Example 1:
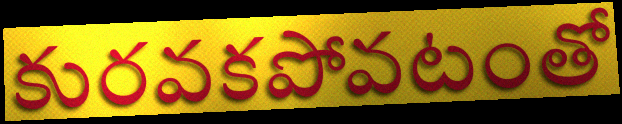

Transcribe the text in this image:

కురవకపోవటంతో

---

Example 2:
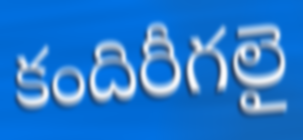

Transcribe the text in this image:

కందిరీగలై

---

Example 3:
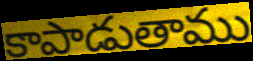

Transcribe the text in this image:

కాపాడుతాము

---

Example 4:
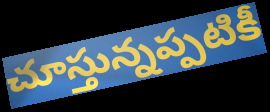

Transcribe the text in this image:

చూస్తున్నప్పటికీ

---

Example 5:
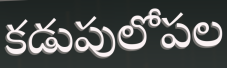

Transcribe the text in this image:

కడుపులోపల